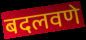
बदलवणे